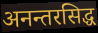
अनन्तरसिद्ध